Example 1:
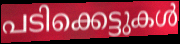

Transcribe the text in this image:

പടിക്കെട്ടുകൾ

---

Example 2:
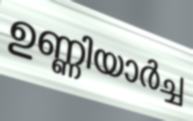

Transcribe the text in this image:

ഉണ്ണിയാർച്ച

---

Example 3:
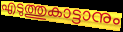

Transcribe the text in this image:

എടുത്തുകാട്ടാനും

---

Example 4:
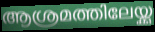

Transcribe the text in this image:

ആശ്രമത്തിലേയ്ക്കു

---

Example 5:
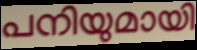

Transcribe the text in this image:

പനിയുമായി